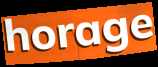
horage